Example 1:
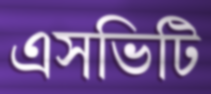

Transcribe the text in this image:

এসভিটি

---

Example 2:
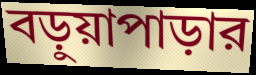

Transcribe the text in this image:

বড়ুয়াপাড়ার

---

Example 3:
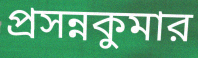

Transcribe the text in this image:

প্রসন্নকুমার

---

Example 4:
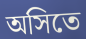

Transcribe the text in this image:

অসিতে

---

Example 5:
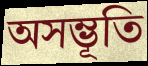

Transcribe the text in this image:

অসম্ভূতি